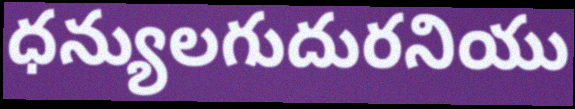
ధన్యులగుదురనియు